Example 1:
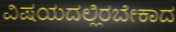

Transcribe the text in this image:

ವಿಷಯದಲ್ಲಿರಬೇಕಾದ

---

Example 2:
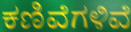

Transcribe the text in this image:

ಕಣಿವೆಗಳಿವೆ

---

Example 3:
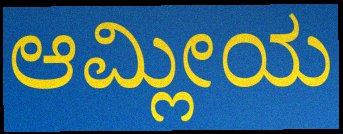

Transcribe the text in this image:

ಆಮ್ಲೀಯ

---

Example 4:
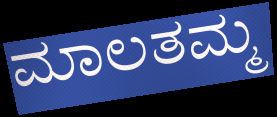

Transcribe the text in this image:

ಮಾಲತಮ್ಮ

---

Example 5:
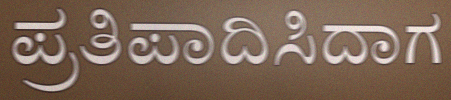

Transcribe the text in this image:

ಪ್ರತಿಪಾದಿಸಿದಾಗ